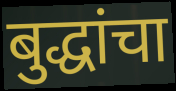
बुद्धांचा